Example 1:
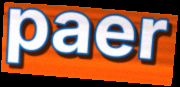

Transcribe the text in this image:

paer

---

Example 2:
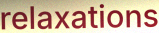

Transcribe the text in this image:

relaxations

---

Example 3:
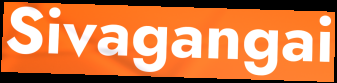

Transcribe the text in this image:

Sivagangai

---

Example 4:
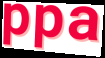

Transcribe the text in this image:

ppa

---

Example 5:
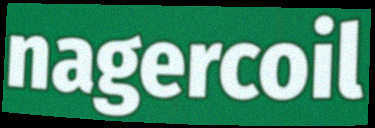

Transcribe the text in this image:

nagercoil